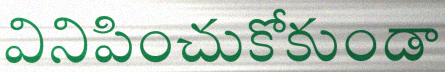
వినిపించుకోకుండా